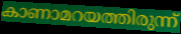
കാണാമറയത്തിരുന്ന്